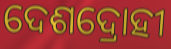
ଦେଶଦ୍ରୋହୀ